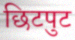
छिटपुट